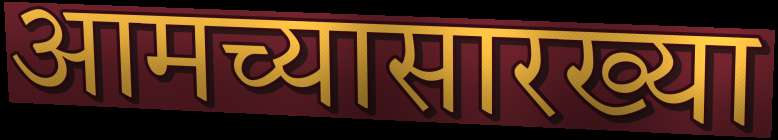
आमच्यासारख्या